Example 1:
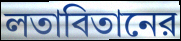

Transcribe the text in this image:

লতাবিতানের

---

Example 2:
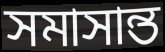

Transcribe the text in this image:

সমাসান্ত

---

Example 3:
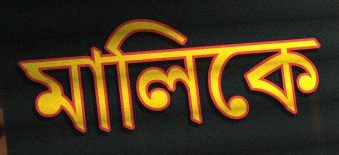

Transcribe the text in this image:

মালিকে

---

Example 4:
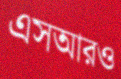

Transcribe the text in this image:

এসআরও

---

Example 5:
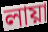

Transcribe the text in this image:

লায়া